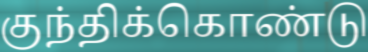
குந்திக்கொண்டு